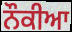
ਨੌਕੀਆ